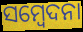
ସମ୍ବେଦନା